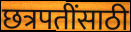
छत्रपतींसाठी